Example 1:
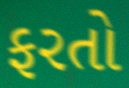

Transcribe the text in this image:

ફરતો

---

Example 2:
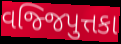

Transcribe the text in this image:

વજ્જિપુત્તકા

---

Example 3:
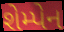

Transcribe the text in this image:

શેમ્પેન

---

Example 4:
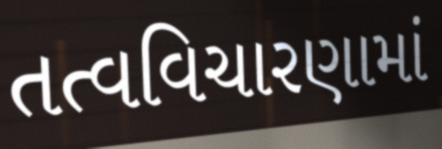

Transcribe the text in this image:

તત્વવિચારણામાં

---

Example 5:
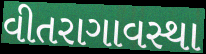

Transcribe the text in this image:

વીતરાગાવસ્થા